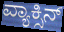
ವ್ಯಾಕ್ಸಿನ್